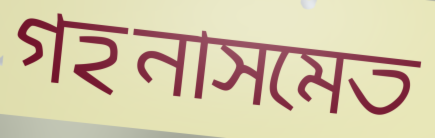
গহনাসমেত